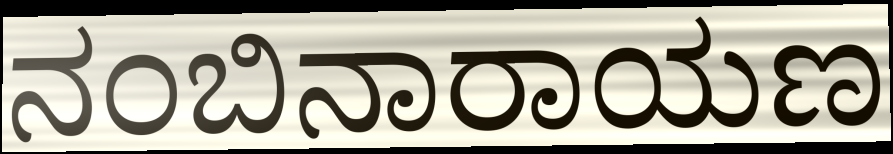
ನಂಬಿನಾರಾಯಣ